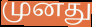
முனது